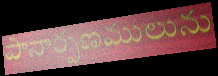
పానార్పణములును